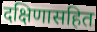
दक्षिणासहित